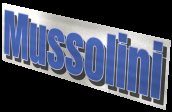
Mussolini